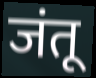
जंतू